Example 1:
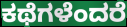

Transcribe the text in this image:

ಕಥೆಗಳೆಂದರೆ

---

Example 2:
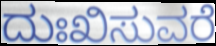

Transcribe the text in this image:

ದುಃಖಿಸುವರೆ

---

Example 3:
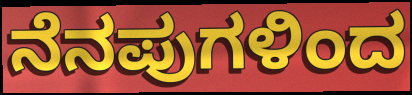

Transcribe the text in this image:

ನೆನಪುಗಳಿಂದ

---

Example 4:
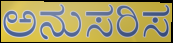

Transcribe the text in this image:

ಅನುಸರಿಸ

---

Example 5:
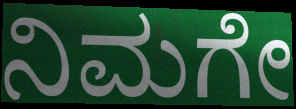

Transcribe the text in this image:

ನಿಮಗೇ